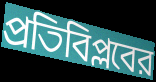
প্রতিবিপ্লবের